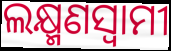
ଲକ୍ଷ୍ମଣସ୍ଵାମୀ